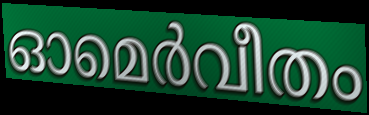
ഓമെർവീതം